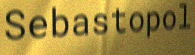
Sebastopol